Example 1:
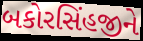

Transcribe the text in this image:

બકોરસિંહજીને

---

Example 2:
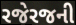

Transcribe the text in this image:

રજેરજની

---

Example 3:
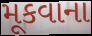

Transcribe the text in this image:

મૂકવાના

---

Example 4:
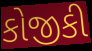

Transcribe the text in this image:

કોજીકી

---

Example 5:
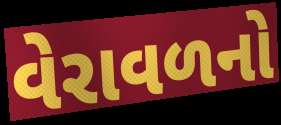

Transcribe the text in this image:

વેરાવળનો